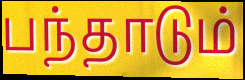
பந்தாடும்